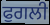
ਫੁਗਲੀ